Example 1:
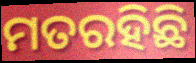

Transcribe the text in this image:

ମତରହିଛି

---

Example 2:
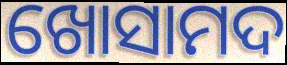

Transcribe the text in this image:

ଖୋସାମଦ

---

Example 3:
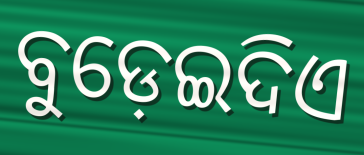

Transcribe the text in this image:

ବୁଡ଼େଇଦିଏ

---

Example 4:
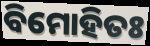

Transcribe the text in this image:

ବିମୋହିତଃ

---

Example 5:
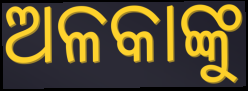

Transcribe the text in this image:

ଅଳକାଙ୍କୁ